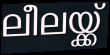
ലീലയ്ക്ക്